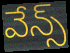
వేన్స్